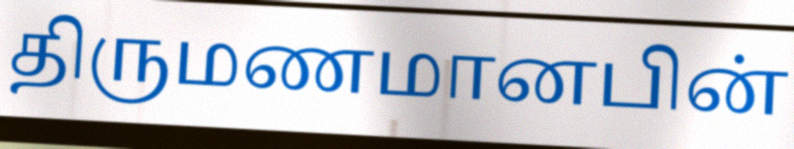
திருமணமானபின்